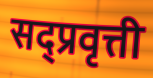
सद्प्रवृत्ती